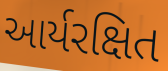
આર્યરક્ષિત